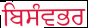
ਬਿਸੰਵਭਰ